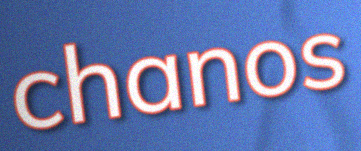
chanos